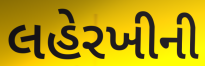
લહેરખીની